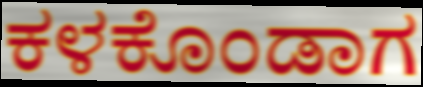
ಕಳಕೊಂಡಾಗ